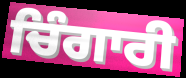
ਚਿੰਗਾਰੀ